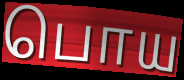
பொய